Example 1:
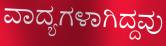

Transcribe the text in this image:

ವಾದ್ಯಗಳಾಗಿದ್ದವು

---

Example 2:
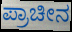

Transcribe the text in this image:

ಪ್ರಾಚೀನ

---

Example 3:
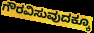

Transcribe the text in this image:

ಗೌರವಿಸುವುದಕ್ಕೂ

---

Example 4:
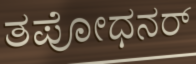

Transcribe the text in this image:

ತಪೋಧನರ್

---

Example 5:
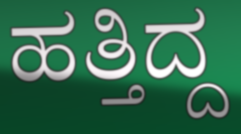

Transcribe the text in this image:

ಹತ್ತಿದ್ದ